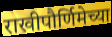
राखीपौर्णिमेच्या